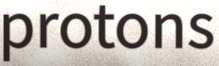
protons